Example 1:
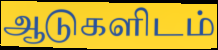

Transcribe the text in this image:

ஆடுகளிடம்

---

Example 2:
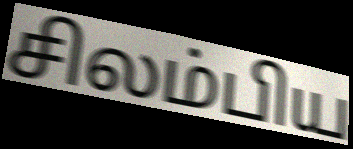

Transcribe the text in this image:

சிலம்பிய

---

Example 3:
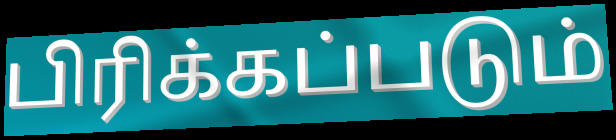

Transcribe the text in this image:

பிரிக்கப்படும்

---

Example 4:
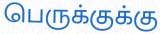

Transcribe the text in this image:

பெருக்குக்கு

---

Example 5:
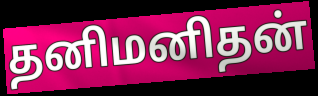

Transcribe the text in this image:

தனிமனிதன்